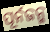
ପୂର୍ନଜନ୍ମ